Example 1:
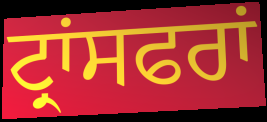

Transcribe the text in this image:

ਟ੍ਰਾਂਸਫਰਾਂ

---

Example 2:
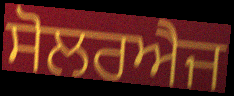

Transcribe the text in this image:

ਸੋਲਰਐਜ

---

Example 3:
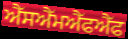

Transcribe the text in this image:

ਐੱਸਐੱਮਐੱਫਐੱਫ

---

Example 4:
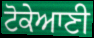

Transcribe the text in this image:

ਟੋਕੇਆਣੀ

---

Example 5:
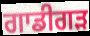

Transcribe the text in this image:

ਗਾਡੀਗੜ